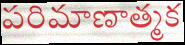
పరిమాణాత్మక